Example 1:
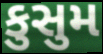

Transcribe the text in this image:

કુસુમ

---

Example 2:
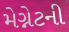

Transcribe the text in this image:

મેગ્નેટની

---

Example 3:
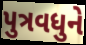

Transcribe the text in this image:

પુત્રવધુને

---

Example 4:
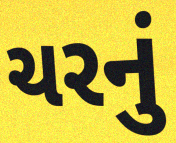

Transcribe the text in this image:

ચરનું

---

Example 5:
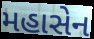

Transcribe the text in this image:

મહાસેન